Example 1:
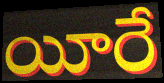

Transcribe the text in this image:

యీరే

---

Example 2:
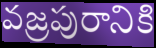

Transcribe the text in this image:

వజ్రపురానికి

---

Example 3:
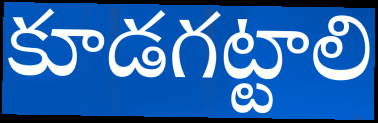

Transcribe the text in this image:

కూడగట్టాలి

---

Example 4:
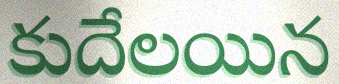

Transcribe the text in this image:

కుదేలయిన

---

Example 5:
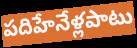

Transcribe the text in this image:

పదిహేనేళ్లపాటు